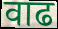
वाढ